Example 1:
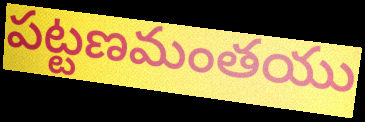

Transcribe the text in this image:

పట్టణమంతయు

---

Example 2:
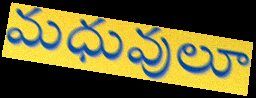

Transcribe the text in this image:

మధువులూ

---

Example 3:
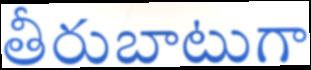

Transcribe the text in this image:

తీరుబాటుగా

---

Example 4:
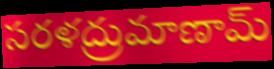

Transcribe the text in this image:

సరళద్రుమాణామ్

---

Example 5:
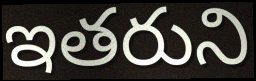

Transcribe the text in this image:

ఇతరుని